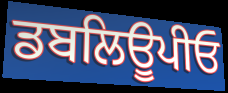
ਡਬਲਿਊਪੀਓ